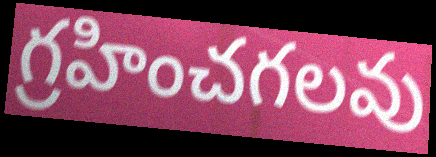
గ్రహించగలవు